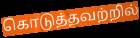
கொடுத்தவற்றில்